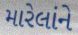
મારેલાંને